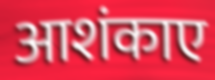
आशंकाए